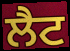
ਲੈਟ